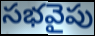
సభవైపు